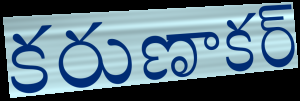
కరుణాకర్